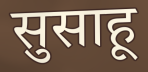
सुसाहू